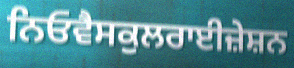
ਨਿਓਵੈਸਕੁਲਰਾਈਜ਼ੇਸ਼ਨ